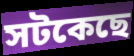
সটকেছে